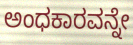
ಅಂಧಕಾರವನ್ನೇ